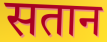
सतान